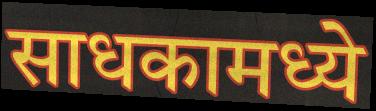
साधकामध्ये